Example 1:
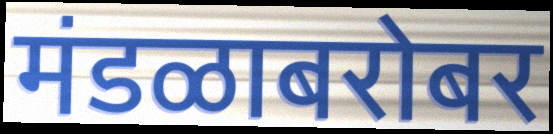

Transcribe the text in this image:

मंडळाबरोबर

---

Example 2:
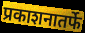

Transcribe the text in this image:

प्रकाशनातर्फे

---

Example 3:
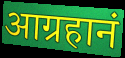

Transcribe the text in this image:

आग्रहानं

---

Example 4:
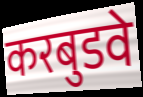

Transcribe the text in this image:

करबुडवे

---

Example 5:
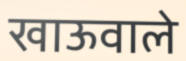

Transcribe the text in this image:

खाऊवाले